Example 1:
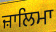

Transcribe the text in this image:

ਜ਼ਾਲਿਮਾ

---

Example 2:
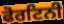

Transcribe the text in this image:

ਫੋਰਟਿਨੀ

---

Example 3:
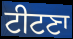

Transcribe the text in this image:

ਟੀਟਣਾ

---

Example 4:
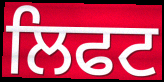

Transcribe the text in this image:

ਲਿਫਟ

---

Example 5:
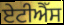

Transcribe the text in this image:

ਏਟੀਐੱਸ